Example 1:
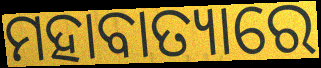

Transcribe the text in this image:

ମହାବାତ୍ୟାରେ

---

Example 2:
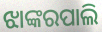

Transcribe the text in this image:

ଝାଙ୍କରପାଲି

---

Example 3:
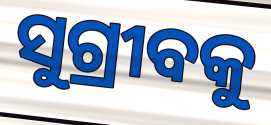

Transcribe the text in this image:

ସୁଗ୍ରୀବକୁ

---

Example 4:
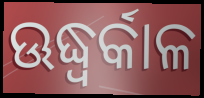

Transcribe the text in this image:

ଊଦ୍ଧ୍ୱର୍କାଳ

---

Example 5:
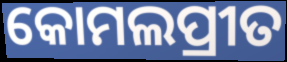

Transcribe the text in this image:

କୋମଲପ୍ରୀତ